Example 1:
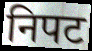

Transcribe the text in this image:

निपट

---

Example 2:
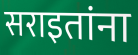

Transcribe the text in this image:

सराइतांना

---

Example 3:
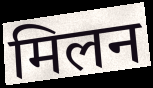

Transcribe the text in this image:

मिलन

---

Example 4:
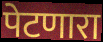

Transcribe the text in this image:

पेटणारा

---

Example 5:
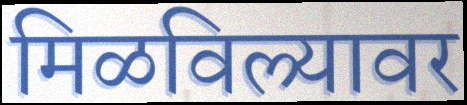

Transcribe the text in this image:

मिळविल्यावर